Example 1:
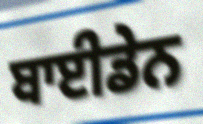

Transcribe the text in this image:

ਬਾਈਡੇਨ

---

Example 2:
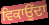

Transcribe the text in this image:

ਵਿਕਾਉੰਦਾ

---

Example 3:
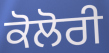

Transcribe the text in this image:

ਕੋਲੋਰੀ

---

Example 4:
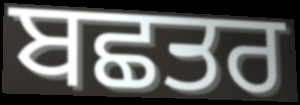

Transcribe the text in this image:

ਬਛਤਰ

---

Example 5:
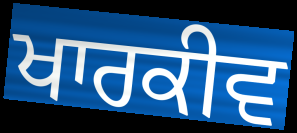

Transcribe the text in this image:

ਖਾਰਕੀਵ